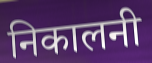
निकालनी